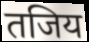
तजिय